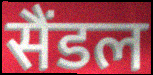
सैंडल